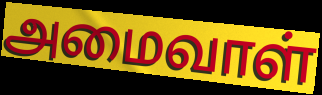
அமைவாள்